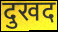
दुखद